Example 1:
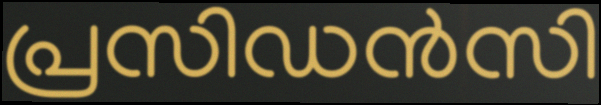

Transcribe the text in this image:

പ്രസിഡൻസി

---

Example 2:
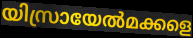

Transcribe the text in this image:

യിസ്രായേൽമക്കളെ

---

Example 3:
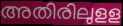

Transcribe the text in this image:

അതിരിലുളള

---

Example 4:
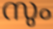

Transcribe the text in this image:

സും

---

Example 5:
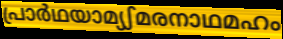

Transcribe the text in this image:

പ്രാർഥയാമ്യഽമരനാഥമഹം